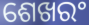
ଶେଖରଂ